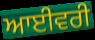
ਆਈਵਰੀ